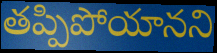
తప్పిపోయానని